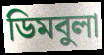
ডিমবুলা